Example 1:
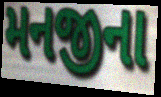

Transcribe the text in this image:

મનજીના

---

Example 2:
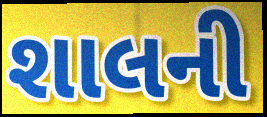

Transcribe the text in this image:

શાલની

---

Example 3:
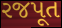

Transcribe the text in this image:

રજપૂત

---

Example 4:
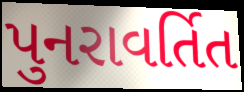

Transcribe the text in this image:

પુનરાવર્તિત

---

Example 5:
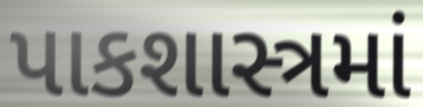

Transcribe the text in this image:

પાકશાસ્ત્રમાં